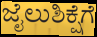
ಜೈಲುಶಿಕ್ಷೆಗೆ